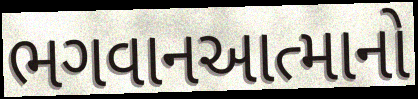
ભગવાનઆત્માનો